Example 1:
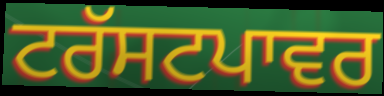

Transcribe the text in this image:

ਟਰੱਸਟਪਾਵਰ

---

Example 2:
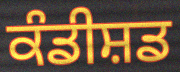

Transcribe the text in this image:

ਕੰਡੀਸ਼ਡ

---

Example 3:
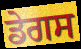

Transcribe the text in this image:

ਡੇਗਸ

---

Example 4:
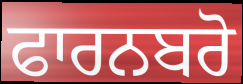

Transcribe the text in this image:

ਫਾਰਨਬਰੋ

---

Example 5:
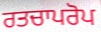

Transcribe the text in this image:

ਰਤਚਾਪਰੋਪ